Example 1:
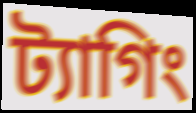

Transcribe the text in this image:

ট্যাগিং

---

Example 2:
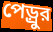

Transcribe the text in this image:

পেড়্রুর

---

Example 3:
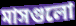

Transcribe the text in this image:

মাসগুলো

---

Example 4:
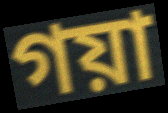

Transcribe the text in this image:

গয়া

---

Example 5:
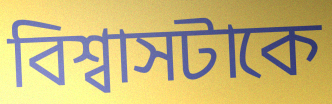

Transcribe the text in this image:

বিশ্বাসটাকে